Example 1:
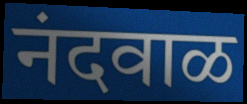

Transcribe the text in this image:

नंदवाळ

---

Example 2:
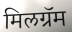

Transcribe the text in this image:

मिलग्रॅम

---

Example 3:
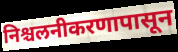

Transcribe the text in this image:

निश्चलनीकरणापासून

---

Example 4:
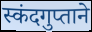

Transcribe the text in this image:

स्कंदगुप्ताने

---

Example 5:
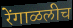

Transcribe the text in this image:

रेंगाळलीच